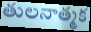
తులనాత్మక